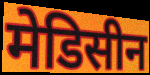
मेडिसीन